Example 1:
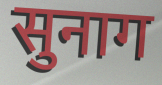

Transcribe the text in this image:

सुनाग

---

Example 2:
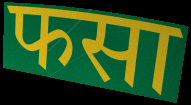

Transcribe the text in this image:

फसा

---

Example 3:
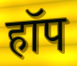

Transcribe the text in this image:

हॉप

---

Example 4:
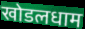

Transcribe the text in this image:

खोडलधाम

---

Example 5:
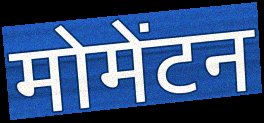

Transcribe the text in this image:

मोमेंटन